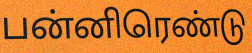
பன்னிரெண்டு